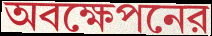
অবক্ষেপনের